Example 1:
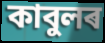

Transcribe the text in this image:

কাবুলৰ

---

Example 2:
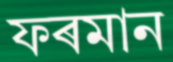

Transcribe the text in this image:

ফৰমান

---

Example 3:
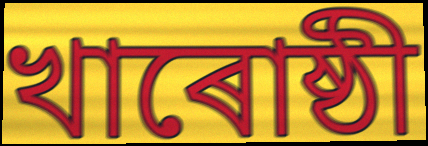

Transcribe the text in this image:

খাৰোষ্ঠী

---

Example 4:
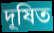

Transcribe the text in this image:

দূষিত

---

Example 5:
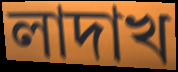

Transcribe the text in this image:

লাদাখ